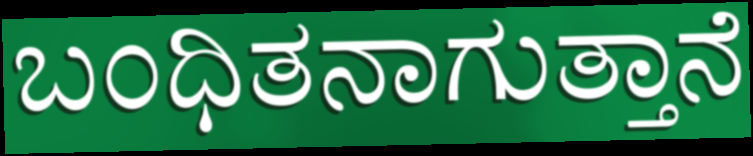
ಬಂಧಿತನಾಗುತ್ತಾನೆ